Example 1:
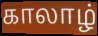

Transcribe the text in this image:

காலாழ்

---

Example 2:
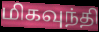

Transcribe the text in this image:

மிகவுந்தி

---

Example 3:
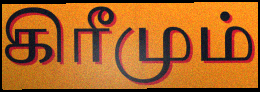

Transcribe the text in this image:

கிரீமும்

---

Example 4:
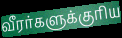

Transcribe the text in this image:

வீரர்களுக்குரிய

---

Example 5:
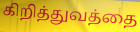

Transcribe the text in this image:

கிறித்துவத்தை